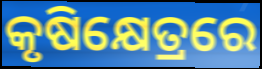
କୃଷିକ୍ଷେତ୍ରରେ